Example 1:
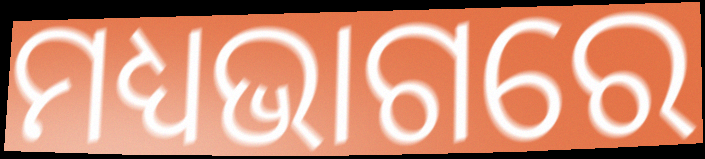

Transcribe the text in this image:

ମଧ୍ୟଭାଗରେ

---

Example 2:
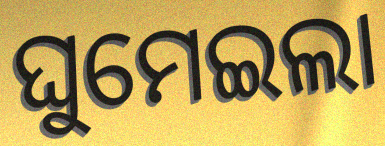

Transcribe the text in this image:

ଘୁମେଇଲା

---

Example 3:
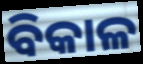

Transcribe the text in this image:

ବିକାଳ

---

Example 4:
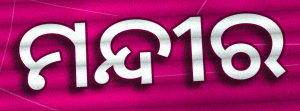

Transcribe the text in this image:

ମନ୍ଦୀର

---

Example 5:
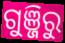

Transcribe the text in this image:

ଗୁଞ୍ଜିରୁ